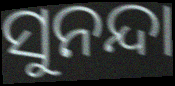
ସୁନନ୍ଦା